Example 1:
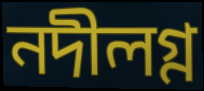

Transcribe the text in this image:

নদীলগ্ন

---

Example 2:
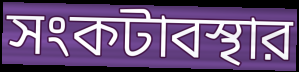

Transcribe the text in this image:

সংকটাবস্থার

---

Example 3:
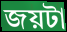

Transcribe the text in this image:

জয়টা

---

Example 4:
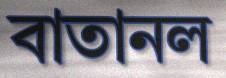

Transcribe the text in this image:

বাতানল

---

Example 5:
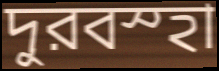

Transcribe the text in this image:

দুরবস্হা